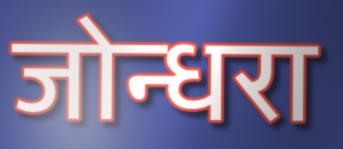
जोन्धरा